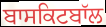
ਬਾਸਕਿਟਬਾੱਲ